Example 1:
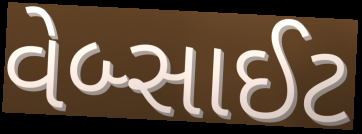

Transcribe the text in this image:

વેબ્સાઈટ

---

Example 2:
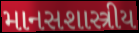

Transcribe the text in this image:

માનસશાસ્ત્રીય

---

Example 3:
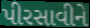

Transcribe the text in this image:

પીરસાવીને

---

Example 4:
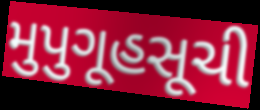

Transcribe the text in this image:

મુપુગૂહસૂચી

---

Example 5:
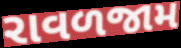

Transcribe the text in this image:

રાવળજામ